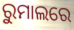
ରୁମାଲରେ